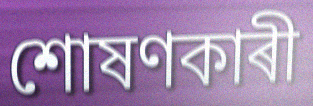
শোষণকাৰী